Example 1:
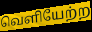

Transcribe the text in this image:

வெளியேற்ற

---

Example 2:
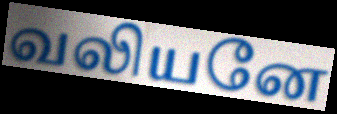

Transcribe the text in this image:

வலியனே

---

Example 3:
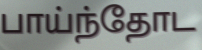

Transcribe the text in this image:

பாய்ந்தோட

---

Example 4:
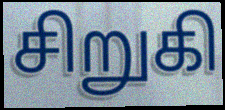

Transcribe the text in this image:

சிறுகி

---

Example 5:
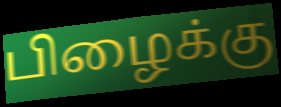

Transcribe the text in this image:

பிழைக்கு